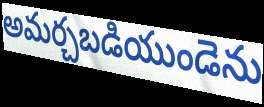
అమర్చబడియుండెను